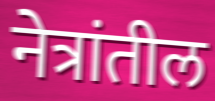
नेत्रांतील